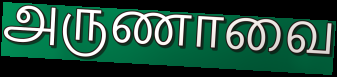
அருணாவை